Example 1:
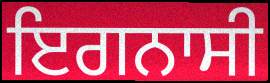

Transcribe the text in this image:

ਇਗਨਾਸੀ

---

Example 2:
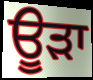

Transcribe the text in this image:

ਊੜਾ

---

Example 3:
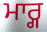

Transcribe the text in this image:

ਮਾਰ੍ਗ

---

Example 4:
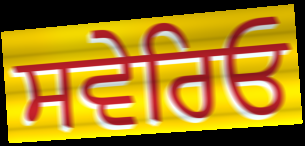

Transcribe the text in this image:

ਸਵੇਰਿਓ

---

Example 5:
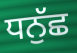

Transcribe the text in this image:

ਧਨੁੱਛ